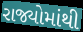
રાજ્યોમાંથી